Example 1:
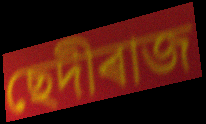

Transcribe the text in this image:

ছেদীৰাজ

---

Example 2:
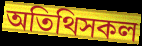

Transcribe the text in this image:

অতিথিসকল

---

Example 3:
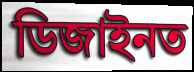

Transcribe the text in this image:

ডিজাইনত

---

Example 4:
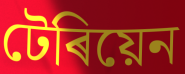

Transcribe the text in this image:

টেৰিয়েন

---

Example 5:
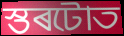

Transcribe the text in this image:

স্তৰটোত